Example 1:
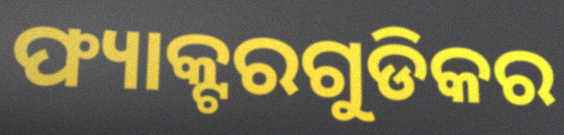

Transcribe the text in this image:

ଫ୍ୟାକ୍ଟରଗୁଡିକର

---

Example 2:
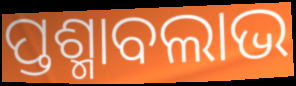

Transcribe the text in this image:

ପ୍ତଶ୍ମାବଲାଭ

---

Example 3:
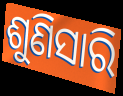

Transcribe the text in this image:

ଶୁଣିସାରି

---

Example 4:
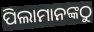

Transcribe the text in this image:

ପିଲାମାନଙ୍କଠୁ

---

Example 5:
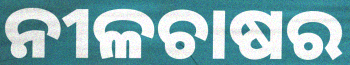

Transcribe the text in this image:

ନୀଳଚାଷର